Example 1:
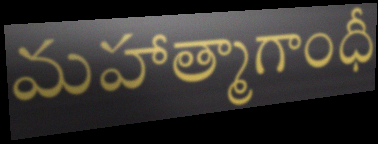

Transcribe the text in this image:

మహాత్మాగాంధీ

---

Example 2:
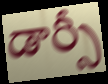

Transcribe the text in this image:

డార్సీ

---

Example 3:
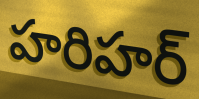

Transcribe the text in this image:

హరిహర్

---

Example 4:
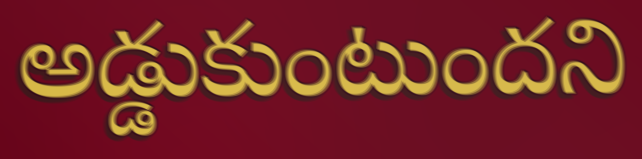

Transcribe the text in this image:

అడ్డుకుంటుందని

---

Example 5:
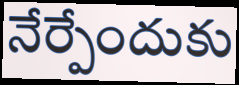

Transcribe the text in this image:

నేర్పేందుకు